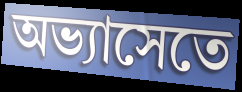
অভ্যাসেতে